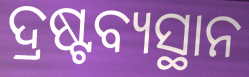
ଦ୍ରଷ୍ଟବ୍ୟସ୍ଥାନ